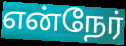
என்நேர்